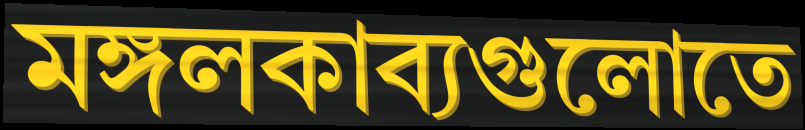
মঙ্গলকাব্যগুলোতে